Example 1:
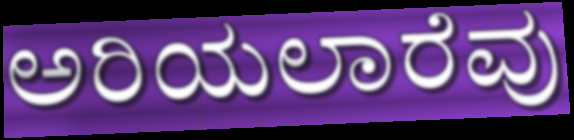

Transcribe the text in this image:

ಅರಿಯಲಾರೆವು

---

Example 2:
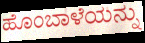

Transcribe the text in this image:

ಹೊಂಬಾಳೆಯನ್ನು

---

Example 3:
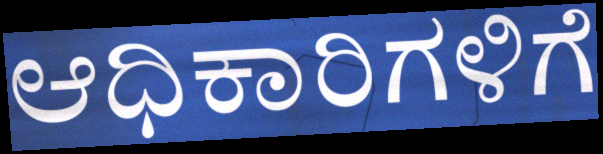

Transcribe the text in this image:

ಆಧಿಕಾರಿಗಳಿಗೆ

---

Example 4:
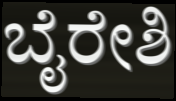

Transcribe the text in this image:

ಬೈರೇಶಿ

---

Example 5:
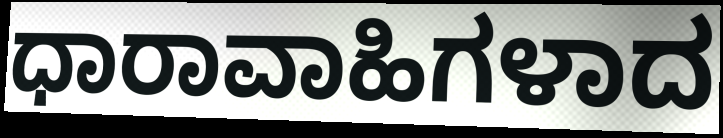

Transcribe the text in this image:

ಧಾರಾವಾಹಿಗಳಾದ